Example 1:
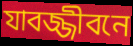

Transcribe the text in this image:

যাবজ্জীবনে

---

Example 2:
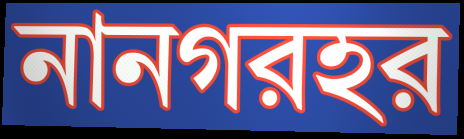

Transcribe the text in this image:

নানগরহর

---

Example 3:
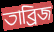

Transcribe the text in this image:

তাব্রিজ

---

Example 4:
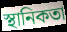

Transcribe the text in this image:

স্থানিকতা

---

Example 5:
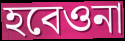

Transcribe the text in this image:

হবেওনা